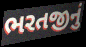
ભરતજીનું